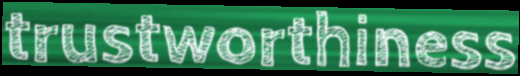
trustworthiness